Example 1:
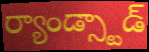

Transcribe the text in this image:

ర్యాండ్స్టాడ్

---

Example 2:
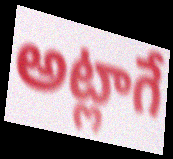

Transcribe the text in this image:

అట్లాగే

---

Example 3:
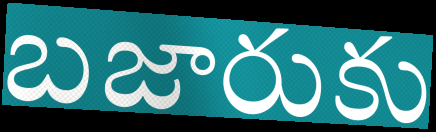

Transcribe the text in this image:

బజారుకు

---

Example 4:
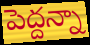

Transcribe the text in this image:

పెద్దన్నా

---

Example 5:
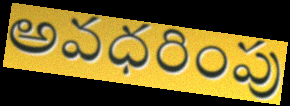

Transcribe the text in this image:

అవధరింపు